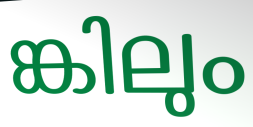
ങ്കിലും